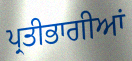
ਪ੍ਰਤੀਭਾਗੀਆਂ